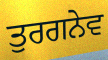
ਤੁਰਗਨੇਵ